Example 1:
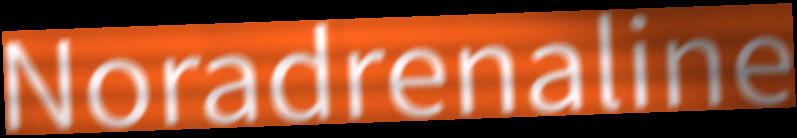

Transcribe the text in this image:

Noradrenaline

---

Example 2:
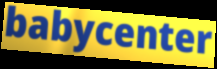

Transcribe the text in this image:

babycenter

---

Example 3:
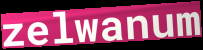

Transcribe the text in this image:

zelwanum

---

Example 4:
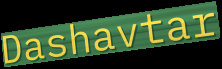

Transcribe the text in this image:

Dashavtar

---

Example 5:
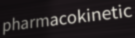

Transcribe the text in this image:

pharmacokinetic